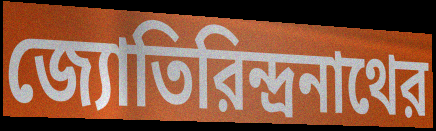
জ্যোতিরিন্দ্রনাথের